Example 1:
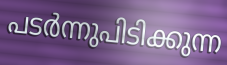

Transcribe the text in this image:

പടർന്നുപിടിക്കുന്ന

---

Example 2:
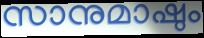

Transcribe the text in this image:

സാനുമാഷും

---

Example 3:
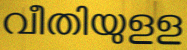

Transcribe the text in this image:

വീതിയുളള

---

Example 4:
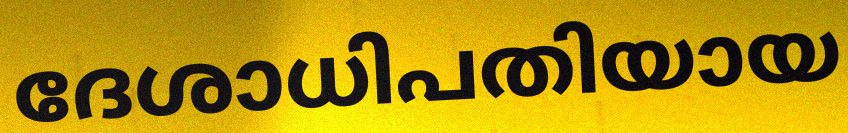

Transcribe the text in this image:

ദേശാധിപതിയായ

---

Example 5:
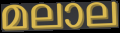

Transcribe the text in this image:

മലാല